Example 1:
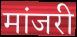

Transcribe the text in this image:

मांजरी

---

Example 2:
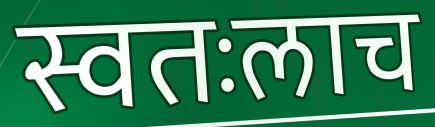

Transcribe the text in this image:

स्वतःलाच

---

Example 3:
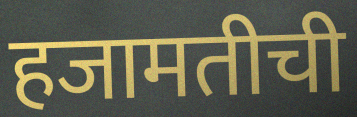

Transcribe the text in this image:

हजामतीची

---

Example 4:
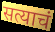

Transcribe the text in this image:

सत्याचं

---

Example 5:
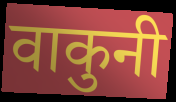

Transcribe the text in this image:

वाकुनी